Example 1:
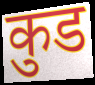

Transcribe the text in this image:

कुड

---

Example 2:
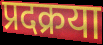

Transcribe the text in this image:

प्रदक्रया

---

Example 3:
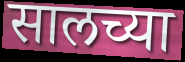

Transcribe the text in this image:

सालच्या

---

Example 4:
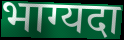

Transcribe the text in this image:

भाग्यदा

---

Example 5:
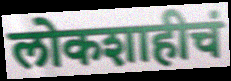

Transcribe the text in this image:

लोकशाहीचं